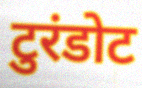
टुरंडोट